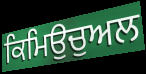
ਕਿਮਿਉਚੁਅਲ